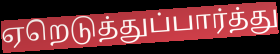
ஏறெடுத்துப்பார்த்து